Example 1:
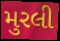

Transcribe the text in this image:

મુરલી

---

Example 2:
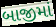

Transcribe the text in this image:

બાજીમાં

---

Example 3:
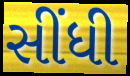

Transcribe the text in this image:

સીંધી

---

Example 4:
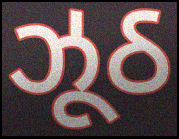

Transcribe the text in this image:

ઝૂઠ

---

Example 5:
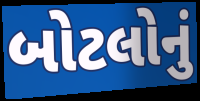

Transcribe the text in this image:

બોટલોનું